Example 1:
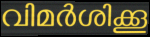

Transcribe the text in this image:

വിമർശിക്കൂ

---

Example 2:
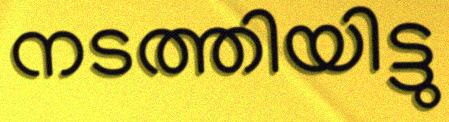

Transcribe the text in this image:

നടത്തിയിട്ടു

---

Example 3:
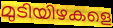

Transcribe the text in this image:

മുടിയിഴകളെ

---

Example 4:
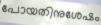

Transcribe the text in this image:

പോയതിനുശേഷം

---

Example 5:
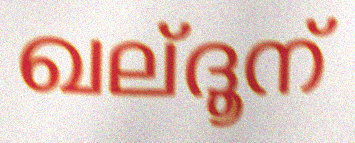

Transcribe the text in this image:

ഖല്ദൂന്